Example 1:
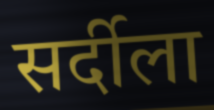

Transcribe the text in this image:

सर्दीला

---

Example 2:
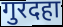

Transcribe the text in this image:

गुरदहा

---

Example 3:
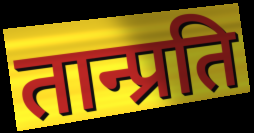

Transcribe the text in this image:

तान्प्रति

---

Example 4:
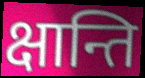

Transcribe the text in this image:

क्षान्ति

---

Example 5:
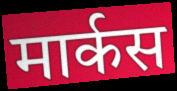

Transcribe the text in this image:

मार्कस